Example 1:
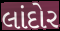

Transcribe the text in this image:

લાંદોર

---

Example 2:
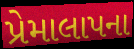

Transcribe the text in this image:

પ્રેમાલાપના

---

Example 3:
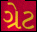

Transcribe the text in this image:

ગ્રેટ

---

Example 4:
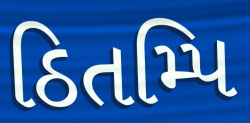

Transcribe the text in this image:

ઠિતમ્પિ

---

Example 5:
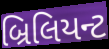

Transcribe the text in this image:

બ્રિલિયન્ટ